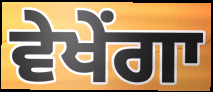
ਵੇਖੇਂਗਾ